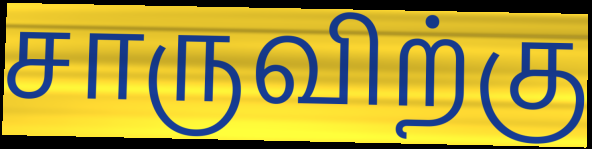
சாருவிற்கு